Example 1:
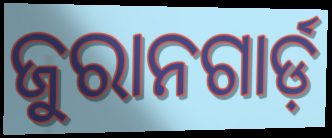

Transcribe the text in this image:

ଜୁରାନଗାର୍ଡ଼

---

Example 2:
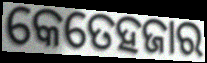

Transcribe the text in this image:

କେତେହଜାର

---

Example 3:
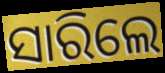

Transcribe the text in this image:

ସାରିଲେ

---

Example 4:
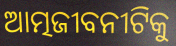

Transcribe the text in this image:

ଆତ୍ମଜୀବନୀଟିକୁ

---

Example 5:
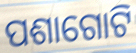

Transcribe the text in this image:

ପଶାଗୋଟି